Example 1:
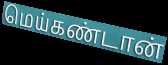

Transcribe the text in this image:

மெய்கண்டான்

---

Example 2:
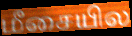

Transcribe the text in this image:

மீசையில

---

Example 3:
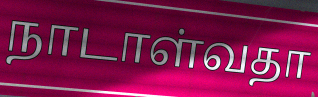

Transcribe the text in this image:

நாடாள்வதா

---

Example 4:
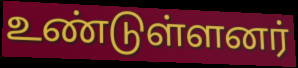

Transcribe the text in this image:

உண்டுள்ளனர்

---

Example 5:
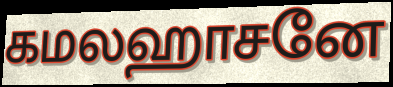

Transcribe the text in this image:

கமலஹாசனே